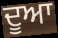
ਦੂਆ